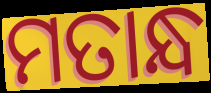
ମତାନ୍ଧ